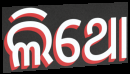
ଲିଥୋ